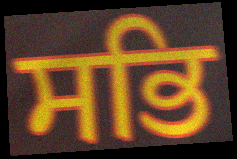
ਸਭਿ